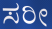
ಸರೀ